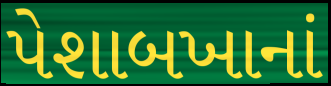
પેશાબખાનાં